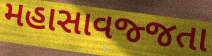
મહાસાવજ્જતા